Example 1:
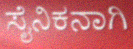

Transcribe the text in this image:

ಸೈನಿಕನಾಗಿ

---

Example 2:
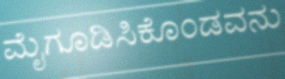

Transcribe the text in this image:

ಮೈಗೂಡಿಸಿಕೊಂಡವನು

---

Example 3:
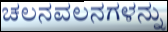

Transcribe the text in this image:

ಚಲನವಲನಗಳನ್ನು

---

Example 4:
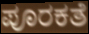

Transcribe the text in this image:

ಪೂರಕತೆ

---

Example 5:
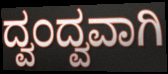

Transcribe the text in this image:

ದ್ವಂದ್ವವಾಗಿ